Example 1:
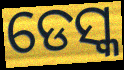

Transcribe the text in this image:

ଡେସ୍କ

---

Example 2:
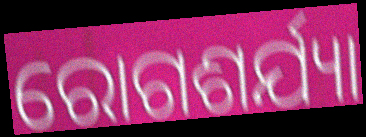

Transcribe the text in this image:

ରୋଗଶର୍ଯ୍ୟା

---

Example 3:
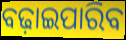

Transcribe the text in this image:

ବଢ଼ାଇପାରିବ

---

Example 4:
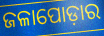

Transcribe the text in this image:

ଜଳାପୋଡ଼ାର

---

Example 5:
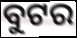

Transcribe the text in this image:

ବୁଟର